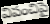
విపంచిపై